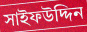
সাইফউদ্দিন